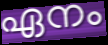
ഏനം